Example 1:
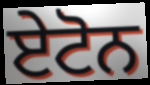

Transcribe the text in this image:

ਏਟੋਨ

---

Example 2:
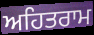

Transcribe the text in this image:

ਅਹਿਤਰਾਮ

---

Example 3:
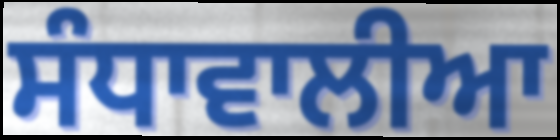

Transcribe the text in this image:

ਸੰਧਾਵਾਲੀਆ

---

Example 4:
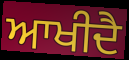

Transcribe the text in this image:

ਆਖੀਦੈ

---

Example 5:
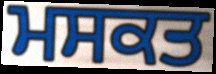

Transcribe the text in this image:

ਮਸਕਤ